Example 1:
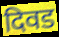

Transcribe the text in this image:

दिवड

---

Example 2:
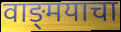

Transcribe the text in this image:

वाङ्मयाचा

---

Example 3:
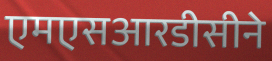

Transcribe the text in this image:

एमएसआरडीसीने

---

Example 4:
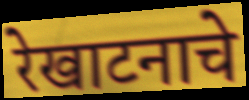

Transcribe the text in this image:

रेखाटनाचे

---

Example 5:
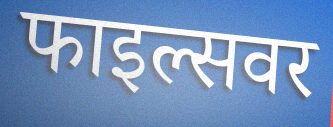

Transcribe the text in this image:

फाइल्सवर